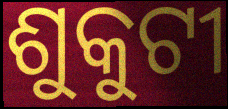
ଶୁକୁଟୀ